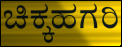
ಚಿಕ್ಕಹಗರಿ